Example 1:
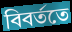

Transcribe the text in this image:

বিবর্ততে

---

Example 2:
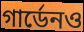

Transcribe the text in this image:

গার্ডেনও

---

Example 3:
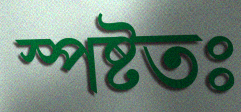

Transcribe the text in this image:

স্পষ্টতঃ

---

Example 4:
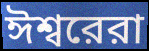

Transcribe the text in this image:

ঈশ্বরেরা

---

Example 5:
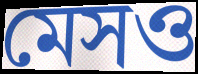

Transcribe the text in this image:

মেসও